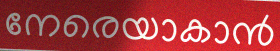
നേരെയാകാൻ